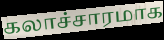
கலாச்சாரமாக